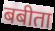
बबीता